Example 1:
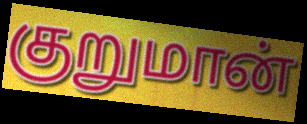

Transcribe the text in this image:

குறுமான்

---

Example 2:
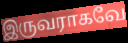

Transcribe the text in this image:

இருவராகவே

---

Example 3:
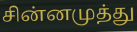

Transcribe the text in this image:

சின்னமுத்து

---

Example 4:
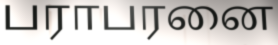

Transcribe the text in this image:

பராபரனை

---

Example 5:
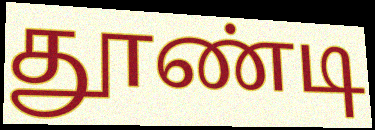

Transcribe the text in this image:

தூண்டி